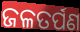
ଜଳତର୍ପଣ